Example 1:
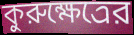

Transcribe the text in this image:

কুরুক্ষেত্রের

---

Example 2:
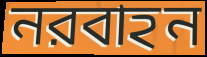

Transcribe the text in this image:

নরবাহন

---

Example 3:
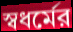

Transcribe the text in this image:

স্বধর্মের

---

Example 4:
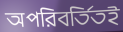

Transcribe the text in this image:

অপরিবর্তিতই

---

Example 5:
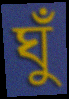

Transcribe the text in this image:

ঘুঁ